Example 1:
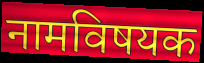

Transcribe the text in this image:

नामविषयक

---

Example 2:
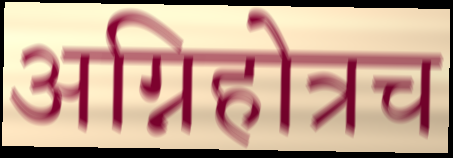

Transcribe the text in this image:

अग्निहोत्रच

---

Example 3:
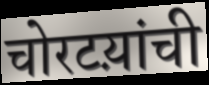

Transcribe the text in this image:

चोरटय़ांची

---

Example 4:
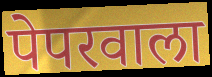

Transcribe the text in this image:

पेपरवाला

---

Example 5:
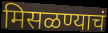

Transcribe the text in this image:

मिसळण्याचं